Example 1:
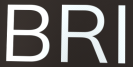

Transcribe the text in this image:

BRI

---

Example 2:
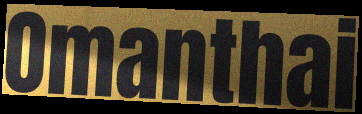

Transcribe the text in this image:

Omanthai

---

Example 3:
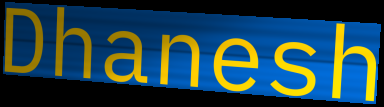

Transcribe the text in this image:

Dhanesh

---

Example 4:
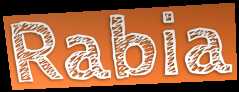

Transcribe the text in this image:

Rabia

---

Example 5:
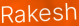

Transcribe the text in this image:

Rakesh